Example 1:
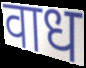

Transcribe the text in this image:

वाध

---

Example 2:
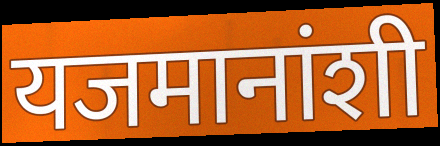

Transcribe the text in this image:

यजमानांशी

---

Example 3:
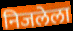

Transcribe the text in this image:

निजलेला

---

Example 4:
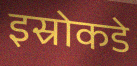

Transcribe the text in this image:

इस्रोकडे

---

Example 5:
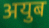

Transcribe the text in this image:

अयुब